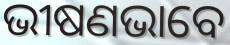
ଭୀଷଣଭାବେ